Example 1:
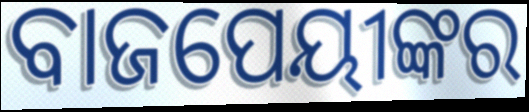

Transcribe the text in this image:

ବାଜପେୟୀଙ୍କର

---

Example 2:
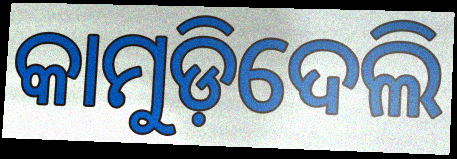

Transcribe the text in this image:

କାମୁଡ଼ିଦେଲି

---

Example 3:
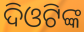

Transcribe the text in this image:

ଦିଓଟିଙ୍କ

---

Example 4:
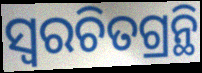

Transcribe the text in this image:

ସ୍ଵରଚିତଗ୍ରନ୍ଥି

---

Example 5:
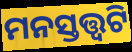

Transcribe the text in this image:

ମନସ୍ତତ୍ତ୍ୱଟି